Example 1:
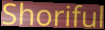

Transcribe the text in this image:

Shoriful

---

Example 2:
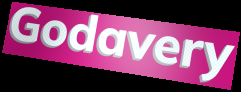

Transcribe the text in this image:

Godavery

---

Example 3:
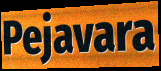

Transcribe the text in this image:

Pejavara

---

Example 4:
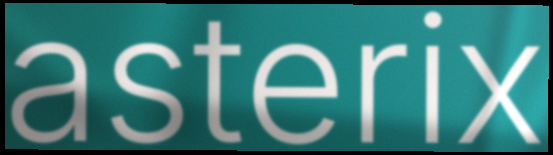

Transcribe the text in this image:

asterix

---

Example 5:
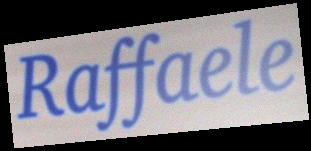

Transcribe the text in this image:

Raffaele